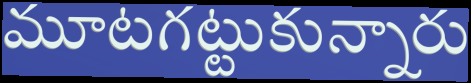
మూటగట్టుకున్నారు